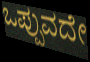
ಒಪ್ಪುವದೇ